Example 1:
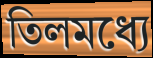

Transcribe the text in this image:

তিলমধ্যে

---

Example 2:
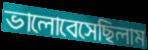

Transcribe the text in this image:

ভালোবেসেছিলাম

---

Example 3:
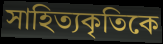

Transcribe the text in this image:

সাহিত্যকৃতিকে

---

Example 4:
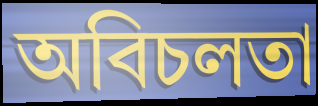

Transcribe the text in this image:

অবিচলতা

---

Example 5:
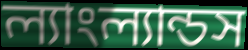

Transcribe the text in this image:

ল্যাংল্যান্ডস